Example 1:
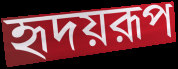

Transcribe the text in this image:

হৃদয়রূপ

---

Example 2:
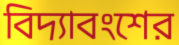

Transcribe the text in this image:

বিদ্যাবংশের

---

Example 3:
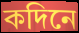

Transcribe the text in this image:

কদিনে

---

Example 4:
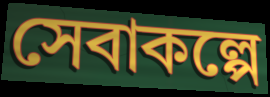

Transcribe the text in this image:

সেবাকল্পে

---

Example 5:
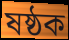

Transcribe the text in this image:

ষষ্ঠক